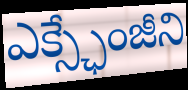
ఎక్స్ఛేంజీని